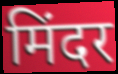
मिंदर